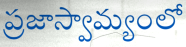
ప్రజాస్వామ్యంలో